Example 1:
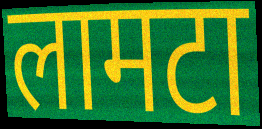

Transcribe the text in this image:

लामटा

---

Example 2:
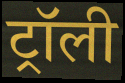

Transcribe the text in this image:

ट्रॉली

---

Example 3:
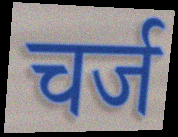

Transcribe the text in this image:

चर्ज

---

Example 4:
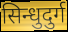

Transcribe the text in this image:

सिन्धुदुर्ग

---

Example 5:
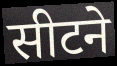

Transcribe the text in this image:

सीटने